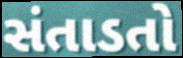
સંતાડતો